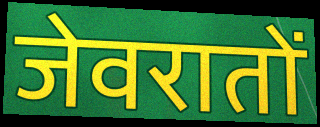
जेवरातों